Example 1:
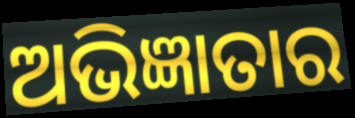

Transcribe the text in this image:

ଅଭିଜ୍ଞାତାର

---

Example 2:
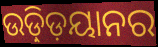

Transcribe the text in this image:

ଉଡ଼୍ଡ଼ିୟାନର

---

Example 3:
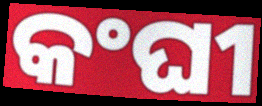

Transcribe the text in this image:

କଂଘୀ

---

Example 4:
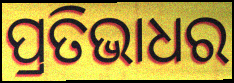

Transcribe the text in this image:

ପ୍ରତିଭାଧର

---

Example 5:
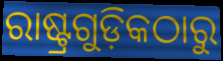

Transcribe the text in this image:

ରାଷ୍ଟ୍ରଗୁଡ଼ିକଠାରୁ